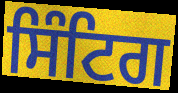
ਸਿੰਟਿਗ